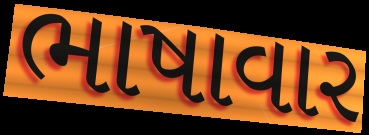
ભાષાવાર